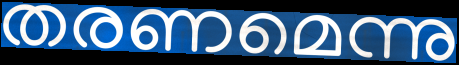
തരണമെന്നു